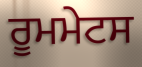
ਰੂਮਮੇਟਸ